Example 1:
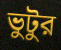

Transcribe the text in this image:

ভুটুর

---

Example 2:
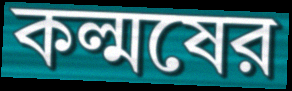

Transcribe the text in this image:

কল্মষের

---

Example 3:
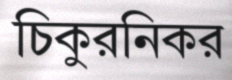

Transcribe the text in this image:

চিকুরনিকর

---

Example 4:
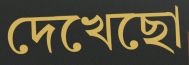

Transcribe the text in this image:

দেখেছো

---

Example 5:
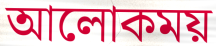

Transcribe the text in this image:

আলোকময়